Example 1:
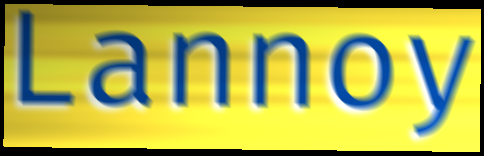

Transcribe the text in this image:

Lannoy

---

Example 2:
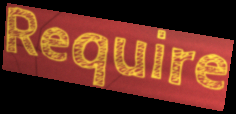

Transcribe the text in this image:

Require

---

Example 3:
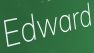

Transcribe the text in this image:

Edward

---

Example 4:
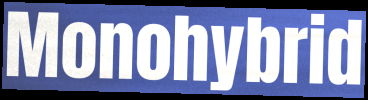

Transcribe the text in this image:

Monohybrid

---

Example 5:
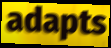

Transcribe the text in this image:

adapts